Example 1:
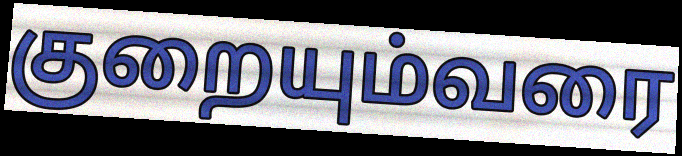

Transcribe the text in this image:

குறையும்வரை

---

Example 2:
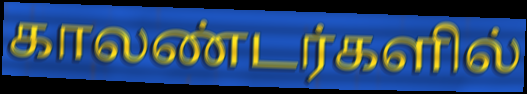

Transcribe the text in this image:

காலண்டர்களில்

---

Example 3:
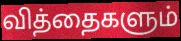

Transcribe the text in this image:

வித்தைகளும்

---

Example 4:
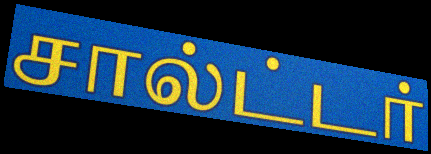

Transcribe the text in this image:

சால்ட்டர்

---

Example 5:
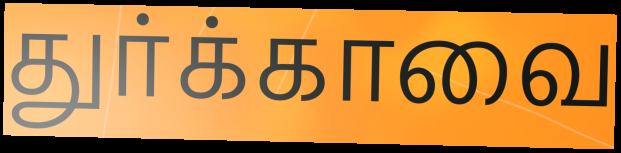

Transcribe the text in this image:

துர்க்காவை